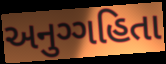
અનુગ્ગહિતા